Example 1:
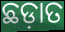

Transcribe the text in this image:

ଛଡ଼ାତ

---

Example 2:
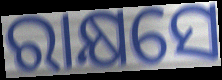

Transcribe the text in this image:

ରାକ୍ଷସେ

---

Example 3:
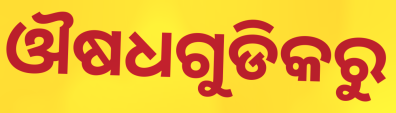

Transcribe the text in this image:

ଔଷଧଗୁଡିକରୁ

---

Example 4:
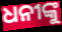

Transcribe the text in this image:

ଧନୀଙ୍କୁ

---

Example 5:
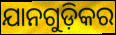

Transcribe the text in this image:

ଯାନଗୁଡ଼ିକର